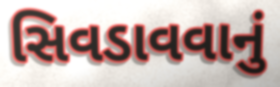
સિવડાવવાનું